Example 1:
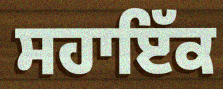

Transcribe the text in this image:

ਸਹਾਇੱਕ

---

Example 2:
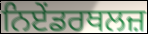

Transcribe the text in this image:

ਨਿਏਂਡਰਥਲਜ਼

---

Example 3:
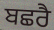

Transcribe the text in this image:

ਬਛਰੈ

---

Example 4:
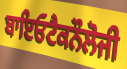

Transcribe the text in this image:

ਬਾਇਓਟੈਕਨੌਲੋਜੀ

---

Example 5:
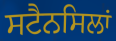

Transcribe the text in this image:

ਸਟੈਨਸਿਲਾਂ